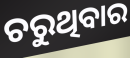
ଚରୁଥିବାର